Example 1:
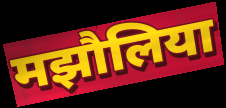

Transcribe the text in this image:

मझौलिया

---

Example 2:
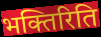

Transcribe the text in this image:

भक्तिरिति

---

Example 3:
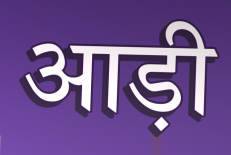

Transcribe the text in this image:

आड़ी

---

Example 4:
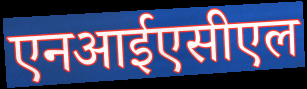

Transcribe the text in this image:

एनआईएसीएल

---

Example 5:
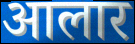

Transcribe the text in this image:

आलार